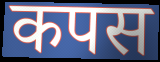
कपस